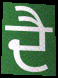
ਦੈ